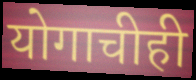
योगाचीही